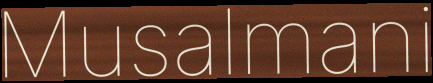
Musalmani